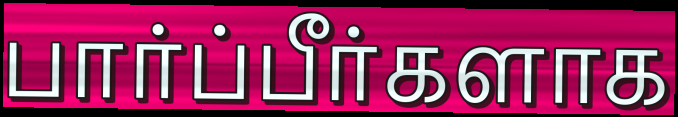
பார்ப்பீர்களாக